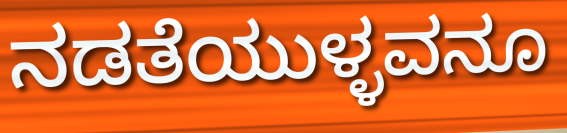
ನಡತೆಯುಳ್ಳವನೂ